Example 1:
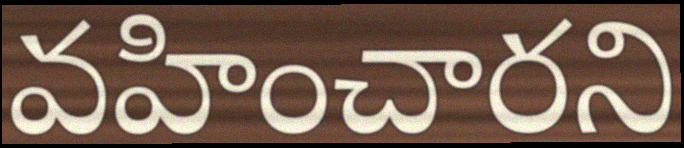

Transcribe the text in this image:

వహించారని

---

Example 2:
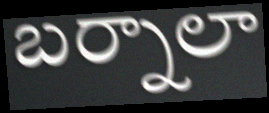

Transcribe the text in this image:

బర్నాలా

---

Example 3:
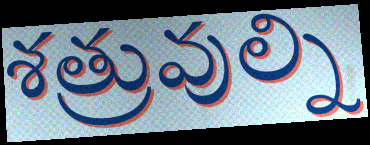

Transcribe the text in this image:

శత్రువుల్ని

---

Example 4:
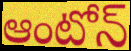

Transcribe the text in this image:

ఆంటోన్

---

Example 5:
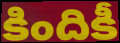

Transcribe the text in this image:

కిందికీ